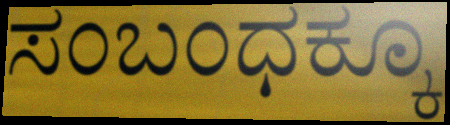
ಸಂಬಂಧಕ್ಕೂ